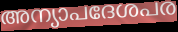
അന്യാപദേശപര